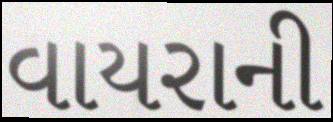
વાયરાની